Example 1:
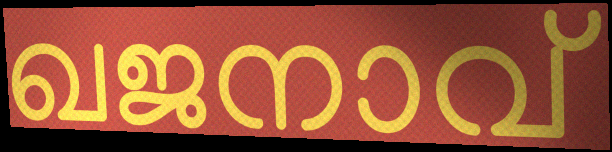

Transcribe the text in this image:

ഖജനാവ്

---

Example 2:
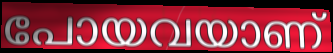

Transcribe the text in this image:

പോയവയാണ്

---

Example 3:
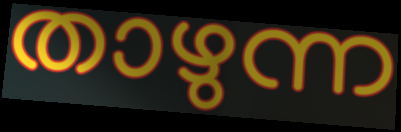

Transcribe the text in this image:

താഴുന്ന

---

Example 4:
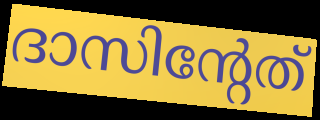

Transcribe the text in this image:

ദാസിന്റേത്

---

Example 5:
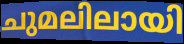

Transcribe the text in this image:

ചുമലിലായി